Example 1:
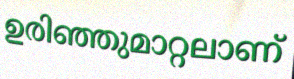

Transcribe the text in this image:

ഉരിഞ്ഞുമാറ്റലാണ്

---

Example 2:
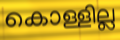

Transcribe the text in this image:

കൊള്ളില്ല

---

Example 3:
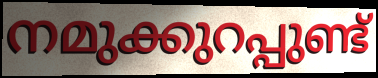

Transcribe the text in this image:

നമുക്കുറപ്പുണ്ട്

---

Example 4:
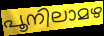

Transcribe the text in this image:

പൂനിലാമഴ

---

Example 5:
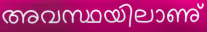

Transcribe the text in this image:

അവസ്ഥയിലാണു്